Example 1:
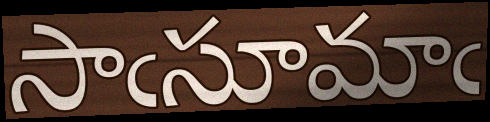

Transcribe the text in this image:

సాఁసూమాఁ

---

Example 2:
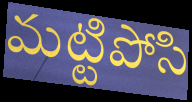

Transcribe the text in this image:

మట్టిపోసి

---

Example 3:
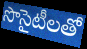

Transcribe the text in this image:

సొసైటీలతో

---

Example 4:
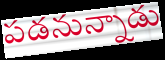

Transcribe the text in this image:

పడనున్నాడు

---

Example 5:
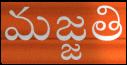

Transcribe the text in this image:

మజ్జతి